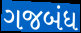
ગજબંધ